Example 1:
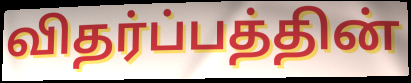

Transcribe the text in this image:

விதர்ப்பத்தின்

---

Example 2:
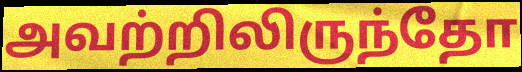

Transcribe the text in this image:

அவற்றிலிருந்தோ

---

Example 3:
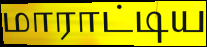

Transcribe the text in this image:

மாராட்டிய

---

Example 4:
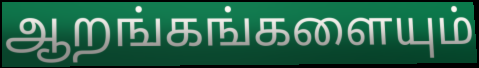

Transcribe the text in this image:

ஆறங்கங்களையும்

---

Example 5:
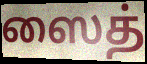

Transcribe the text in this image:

ஸைத்